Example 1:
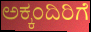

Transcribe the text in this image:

ಅಕ್ಕಂದಿರಿಗೆ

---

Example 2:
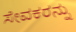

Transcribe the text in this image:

ಸೇವಕರನ್ನು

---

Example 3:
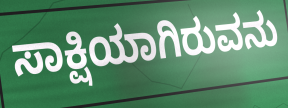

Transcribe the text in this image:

ಸಾಕ್ಷಿಯಾಗಿರುವನು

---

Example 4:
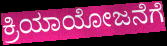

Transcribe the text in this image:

ಕ್ರಿಯಾಯೋಜನೆಗೆ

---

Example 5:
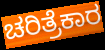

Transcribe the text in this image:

ಚರಿತ್ರೆಕಾರ